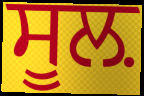
ਸੂਲ਼